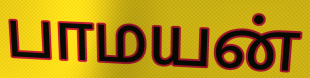
பாமயன்